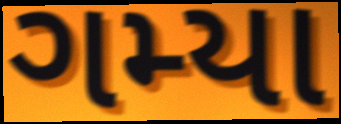
ગમ્યા